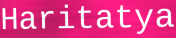
Haritatya